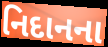
નિદાનના